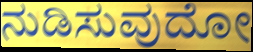
ನುಡಿಸುವುದೋ